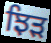
ਝਿੜ